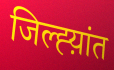
जिल्ह्य़ांत